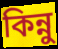
কিন্নু